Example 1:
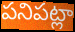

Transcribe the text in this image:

పనిపట్లా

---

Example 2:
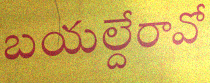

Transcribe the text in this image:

బయల్దేరావో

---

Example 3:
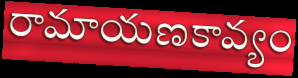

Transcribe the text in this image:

రామాయణకావ్యం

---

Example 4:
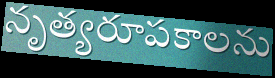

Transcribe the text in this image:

నృత్యరూపకాలను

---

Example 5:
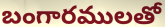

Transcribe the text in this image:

బంగారములతో